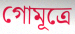
গোমূত্রে